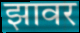
झावर